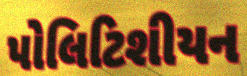
પોલિટિશીયન